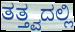
ತತ್ತ್ವದಲ್ಲಿ